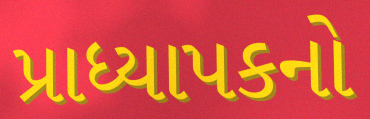
પ્રાધ્યાપકનો